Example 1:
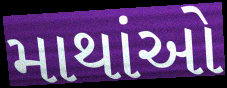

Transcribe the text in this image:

માથાંઓ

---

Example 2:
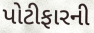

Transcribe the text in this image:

પોટીફારની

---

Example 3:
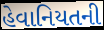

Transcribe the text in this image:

હેવાનિયતની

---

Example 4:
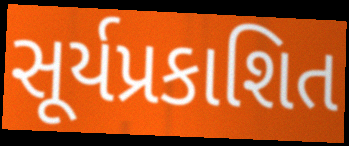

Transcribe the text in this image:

સૂર્યપ્રકાશિત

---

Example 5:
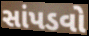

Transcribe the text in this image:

સાંપડવો